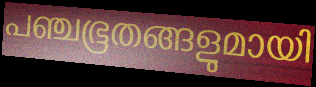
പഞ്ചഭൂതങ്ങളുമായി